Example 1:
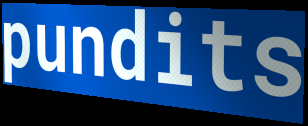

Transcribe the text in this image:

pundits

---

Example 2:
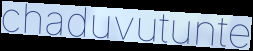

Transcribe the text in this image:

chaduvutunte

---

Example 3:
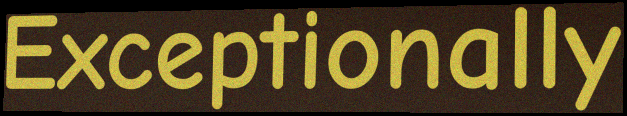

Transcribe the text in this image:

Exceptionally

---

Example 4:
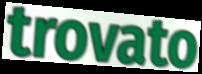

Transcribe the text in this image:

trovato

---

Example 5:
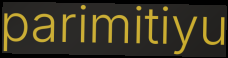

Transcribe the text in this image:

parimitiyu